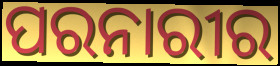
ପରନାରୀର